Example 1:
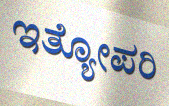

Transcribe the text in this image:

ಇತ್ಯೋಪರಿ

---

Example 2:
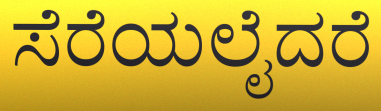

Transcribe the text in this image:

ಸೆರೆಯಲೈದರೆ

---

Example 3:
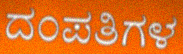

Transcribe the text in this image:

ದಂಪತಿಗಳ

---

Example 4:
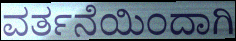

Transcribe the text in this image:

ವರ್ತನೆಯಿಂದಾಗಿ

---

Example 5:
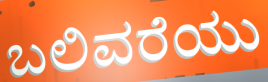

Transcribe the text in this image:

ಬಲಿವರೆಯು